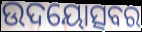
ଉଦୟୋତ୍ସବର